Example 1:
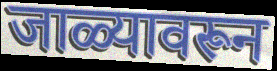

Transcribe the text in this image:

जाळ्यावरून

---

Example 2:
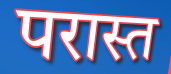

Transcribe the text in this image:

परास्त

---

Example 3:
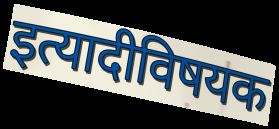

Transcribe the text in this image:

इत्यादीविषयक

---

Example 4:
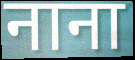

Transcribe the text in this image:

नाना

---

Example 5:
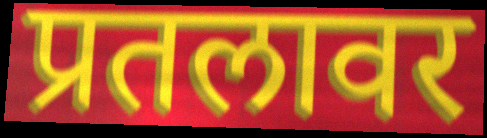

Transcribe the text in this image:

प्रतलावर